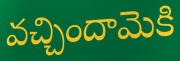
వచ్చిందామెకి